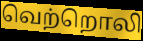
வெற்றொலி